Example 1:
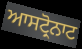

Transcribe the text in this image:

ਆਸਟ੍ਰੋਨਾਟ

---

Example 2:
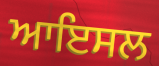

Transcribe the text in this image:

ਆਇਸਲ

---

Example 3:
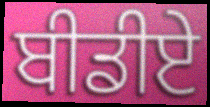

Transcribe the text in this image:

ਬੀਡੀਏ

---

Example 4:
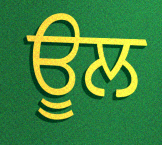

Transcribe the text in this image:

ਊਲ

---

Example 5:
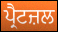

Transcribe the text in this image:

ਪ੍ਰੈਟਜ਼ਲ